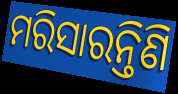
ମରିସାରନ୍ତିଣି